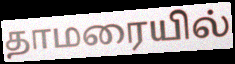
தாமரையில்